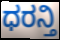
ಧರನ್ತಿ